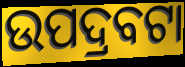
ଉପଦ୍ରବଟା